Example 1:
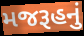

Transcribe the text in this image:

મજરૂહનું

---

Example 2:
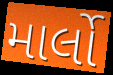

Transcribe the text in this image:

માર્લો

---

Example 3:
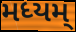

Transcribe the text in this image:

મધ્યમ્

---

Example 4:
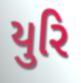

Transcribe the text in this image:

યુરિ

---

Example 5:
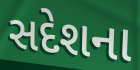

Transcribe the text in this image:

સદેશના